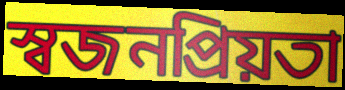
স্বজনপ্রিয়তা